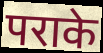
पराके